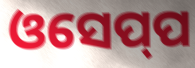
ଓସେପ୍‍ପ